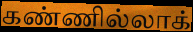
கண்ணில்லாக்